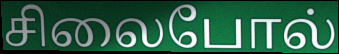
சிலைபோல்